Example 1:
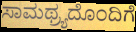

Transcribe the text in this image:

ಸಾಮಥ್ರ್ಯದೊಂದಿಗೆ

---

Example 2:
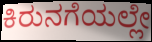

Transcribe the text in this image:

ಕಿರುನಗೆಯಲ್ಲೇ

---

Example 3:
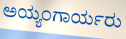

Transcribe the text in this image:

ಅಯ್ಯಂಗಾರ್ಯರು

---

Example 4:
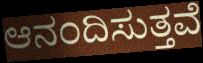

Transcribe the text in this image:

ಆನಂದಿಸುತ್ತವೆ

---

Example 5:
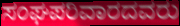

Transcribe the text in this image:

ಸಂಘಪರಿವಾರದವರು